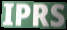
IPRS